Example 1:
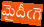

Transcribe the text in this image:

మైదీఁగె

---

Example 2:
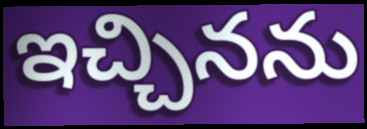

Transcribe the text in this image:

ఇచ్చినను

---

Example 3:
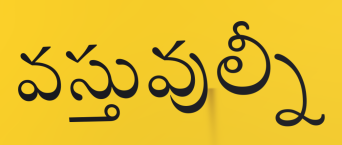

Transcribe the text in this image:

వస్తువుల్నీ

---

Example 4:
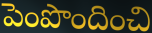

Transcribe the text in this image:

పెంపొందించి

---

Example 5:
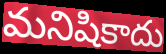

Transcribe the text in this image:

మనిషికాదు